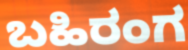
ಬಹಿರಂಗ